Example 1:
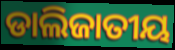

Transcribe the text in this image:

ଡାଲିଜାତୀୟ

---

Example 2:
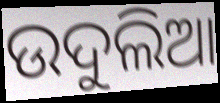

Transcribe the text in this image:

ଉଦୁଲିଆ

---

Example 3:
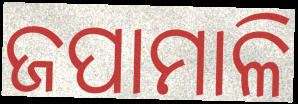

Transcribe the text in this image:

ଜପାମାଳି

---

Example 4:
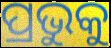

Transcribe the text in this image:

ପ୍ରଭୁକୁ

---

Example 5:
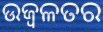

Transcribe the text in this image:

ଉଜ୍ବଳତର